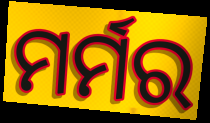
ମର୍ମର